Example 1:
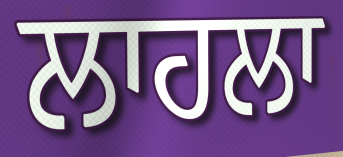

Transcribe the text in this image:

ਲਾਹਲਾ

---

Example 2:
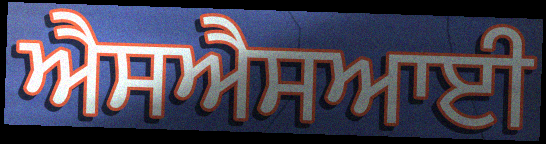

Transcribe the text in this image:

ਐਸਐਸਆਈ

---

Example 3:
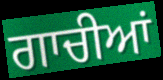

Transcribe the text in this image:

ਗਾਚੀਆਂ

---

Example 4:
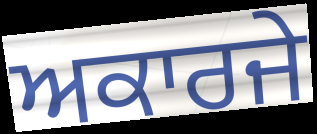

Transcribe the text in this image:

ਅਕਾਰਜੇ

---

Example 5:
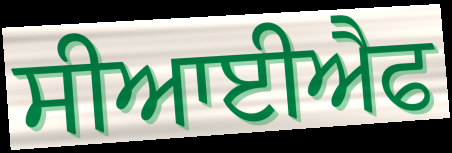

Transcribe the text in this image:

ਸੀਆਈਐਫ